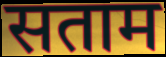
सताम